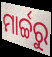
ମାର୍ଚ୍ଚରୁ